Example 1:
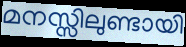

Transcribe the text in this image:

മനസ്സിലുണ്ടായി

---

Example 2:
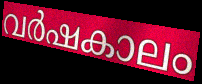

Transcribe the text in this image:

വർഷകാലം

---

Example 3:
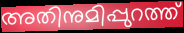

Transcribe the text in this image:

അതിനുമിപ്പുറത്ത്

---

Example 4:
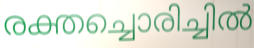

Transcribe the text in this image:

രക്തച്ചൊരിച്ചിൽ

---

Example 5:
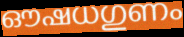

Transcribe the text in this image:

ഔഷധഗുണം